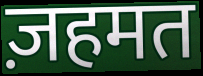
ज़हमत